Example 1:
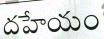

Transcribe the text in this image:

దహేయం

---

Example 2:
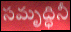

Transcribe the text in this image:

సమృద్ధినీ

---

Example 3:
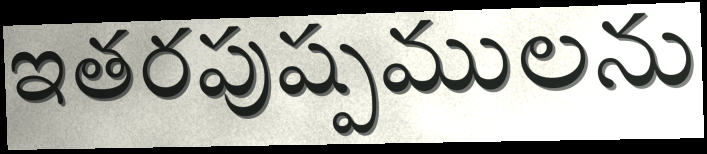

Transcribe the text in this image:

ఇతరపుష్పములను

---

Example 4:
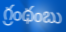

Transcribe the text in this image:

గ్రంథంబు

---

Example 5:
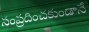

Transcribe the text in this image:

సంప్రదించకుండానే